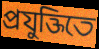
প্রযুক্তিতে